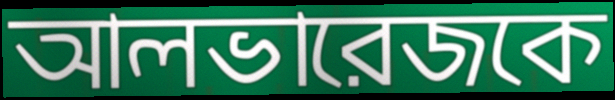
আলভারেজকে